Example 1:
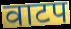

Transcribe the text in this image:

वाटप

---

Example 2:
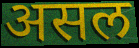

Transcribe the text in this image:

असल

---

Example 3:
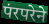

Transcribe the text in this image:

पंरपरेने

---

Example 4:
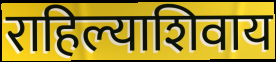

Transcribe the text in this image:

राहिल्याशिवाय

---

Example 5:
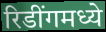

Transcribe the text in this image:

रिडींगमध्ये